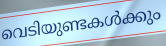
വെടിയുണ്ടകൾക്കും